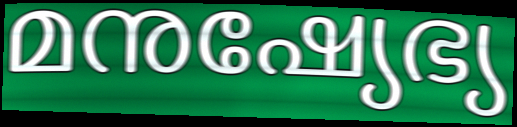
മനുഷ്യേഭ്യ